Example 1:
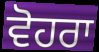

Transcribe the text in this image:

ਵੋਹਰਾ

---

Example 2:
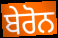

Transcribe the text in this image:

ਬੇਰੋਨ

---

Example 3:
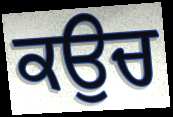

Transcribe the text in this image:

ਕਉਚ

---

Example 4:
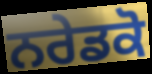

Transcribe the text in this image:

ਨਰੇਡਕੋ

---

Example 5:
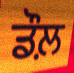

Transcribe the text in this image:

ਡੌਲ਼